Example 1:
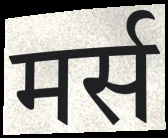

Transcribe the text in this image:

मर्स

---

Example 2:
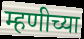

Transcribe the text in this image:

म्हणीच्या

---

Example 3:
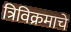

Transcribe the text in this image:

त्रिविक्रमाचे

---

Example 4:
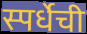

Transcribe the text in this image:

स्पर्धेची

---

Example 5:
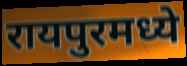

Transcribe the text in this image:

रायपुरमध्ये